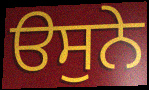
ੳਸੁਨੇ